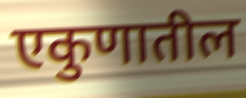
एकुणातील